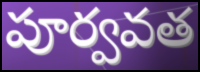
పూర్వవత